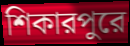
শিকারপুরে